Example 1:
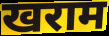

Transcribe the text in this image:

खराम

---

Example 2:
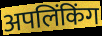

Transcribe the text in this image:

अपलिंकिंग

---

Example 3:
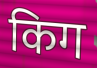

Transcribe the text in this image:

किग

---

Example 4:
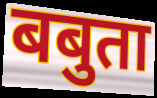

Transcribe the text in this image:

बबुता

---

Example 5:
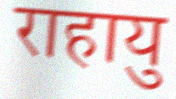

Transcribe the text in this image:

राहायु